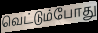
வெட்டும்போது